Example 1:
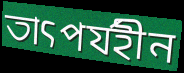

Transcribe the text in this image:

তাৎপর্যহীন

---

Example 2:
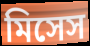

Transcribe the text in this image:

মিসেস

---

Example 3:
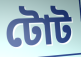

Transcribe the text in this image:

টোট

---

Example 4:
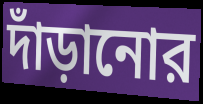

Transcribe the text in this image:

দাঁড়ানোর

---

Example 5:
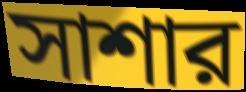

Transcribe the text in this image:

সাশার